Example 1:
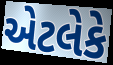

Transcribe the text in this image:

એટલેકે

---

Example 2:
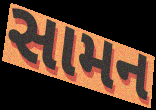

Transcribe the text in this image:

સામન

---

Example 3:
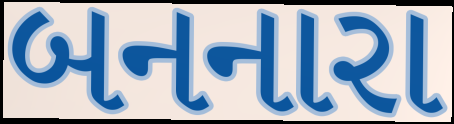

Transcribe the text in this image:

બનનારા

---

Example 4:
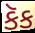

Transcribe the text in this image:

કૅક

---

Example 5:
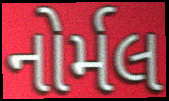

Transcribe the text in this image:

નોર્મલ